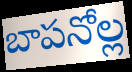
బాపనోల్ల